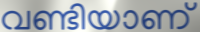
വണ്ടിയാണ്